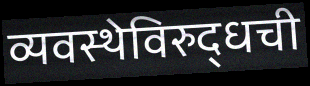
व्यवस्थेविरुद्धची